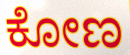
ಕೋಣ